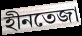
হীনতেজা